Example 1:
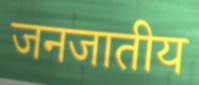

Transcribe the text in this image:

जनजातीय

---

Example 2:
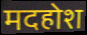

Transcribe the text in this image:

मदहोश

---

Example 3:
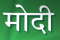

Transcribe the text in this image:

मोदी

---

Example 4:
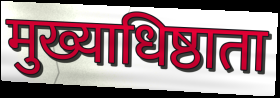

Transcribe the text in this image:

मुख्याधिष्ठाता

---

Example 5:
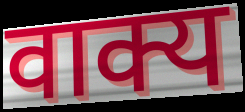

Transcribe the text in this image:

वाक्य